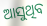
ଆସୁଥିବ